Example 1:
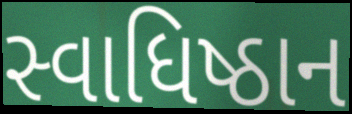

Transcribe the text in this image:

સ્વાધિષ્ઠાન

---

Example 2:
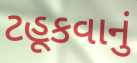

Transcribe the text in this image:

ટહૂકવાનું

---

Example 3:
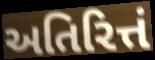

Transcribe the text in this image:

અતિરિત્તં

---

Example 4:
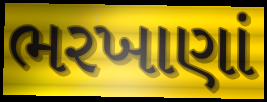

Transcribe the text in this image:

ભરખાણાં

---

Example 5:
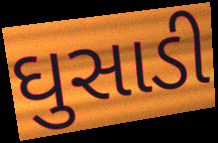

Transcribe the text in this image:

ઘુસાડી